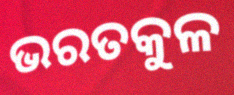
ଭରତକୁଳ